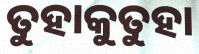
ତୁହାକୁତୁହା